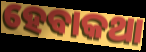
ହେବାକଥା